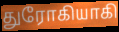
துரோகியாகி